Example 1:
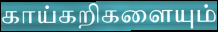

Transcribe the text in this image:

காய்கறிகளையும்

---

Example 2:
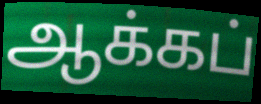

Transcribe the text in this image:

ஆக்கப்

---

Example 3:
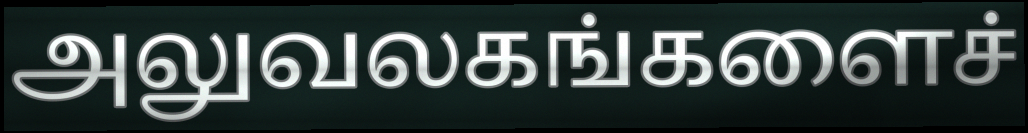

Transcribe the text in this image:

அலுவலகங்களைச்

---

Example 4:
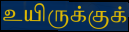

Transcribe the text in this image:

உயிருக்குக்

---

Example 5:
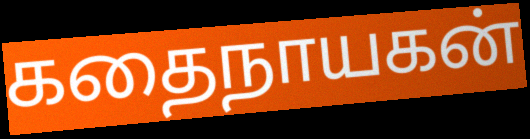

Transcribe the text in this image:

கதைநாயகன்